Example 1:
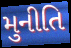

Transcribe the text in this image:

મુનીતિ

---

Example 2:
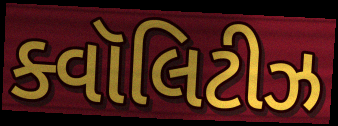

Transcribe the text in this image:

ક્વૉલિટીઝ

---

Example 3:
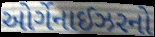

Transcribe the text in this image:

ઓર્ગેનાઈઝરનો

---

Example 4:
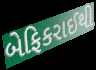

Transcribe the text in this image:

બેફિકરાઈથી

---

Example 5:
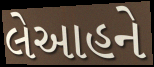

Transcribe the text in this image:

લેઆહને